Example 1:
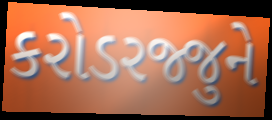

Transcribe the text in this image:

કરોડરજ્જુને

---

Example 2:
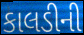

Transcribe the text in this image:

કાલડીની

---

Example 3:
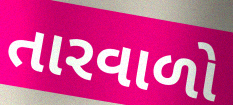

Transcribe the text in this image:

તારવાળો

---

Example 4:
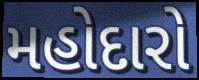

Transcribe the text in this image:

મહોદારો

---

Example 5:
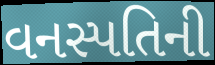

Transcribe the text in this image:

વનસ્પતિની